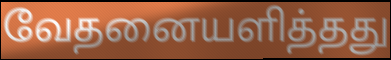
வேதனையளித்தது